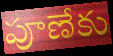
పూణేకు